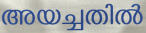
അയച്ചതിൽ